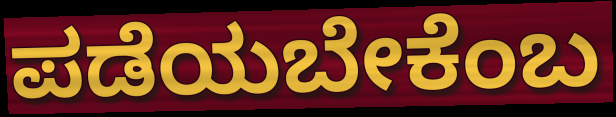
ಪಡೆಯಬೇಕೆಂಬ